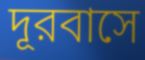
দূরবাসে